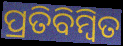
ପ୍ରତିବିମ୍ବିତ